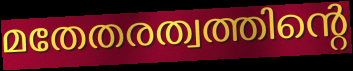
മതേതരത്വത്തിന്റെ